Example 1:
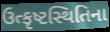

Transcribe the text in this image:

ઉત્કૃષ્ટસ્થિતિના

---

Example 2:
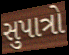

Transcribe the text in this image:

સુપાત્રો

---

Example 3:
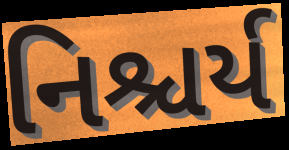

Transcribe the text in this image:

નિશ્ચર્ય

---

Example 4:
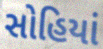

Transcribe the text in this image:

સોહિયાં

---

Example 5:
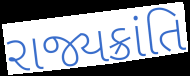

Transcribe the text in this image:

રાજ્યક્રાંતિ